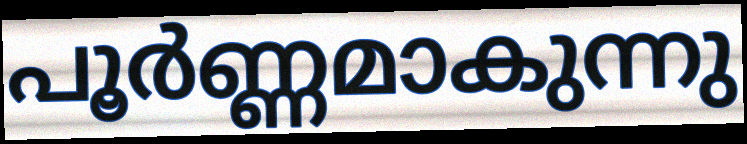
പൂർണ്ണമാകുന്നു